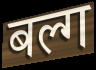
बल्ग